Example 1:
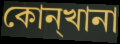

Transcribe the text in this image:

কোন্খানা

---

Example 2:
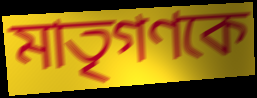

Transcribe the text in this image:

মাতৃগণকে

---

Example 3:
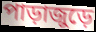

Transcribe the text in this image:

পাড়াজুড়ে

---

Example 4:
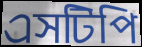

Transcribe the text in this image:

এসটিপি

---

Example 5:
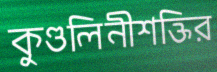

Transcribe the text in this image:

কুণ্ডলিনীশক্তির